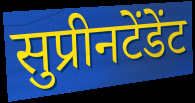
सुप्रीनटेंडेंट